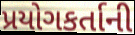
પ્રયોગકર્તાની